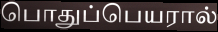
பொதுப்பெயரால்